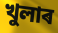
খুলাৰ